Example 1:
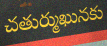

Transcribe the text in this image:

చతుర్ముఖునకు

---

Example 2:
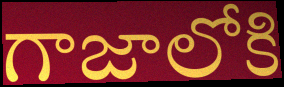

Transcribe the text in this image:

గాజాలోకి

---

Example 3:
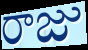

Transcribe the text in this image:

రాజు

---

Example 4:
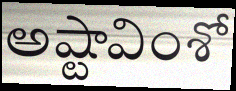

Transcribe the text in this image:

అష్టావింశో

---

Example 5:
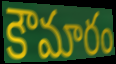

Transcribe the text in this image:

కౌమారం